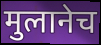
मुलानेच